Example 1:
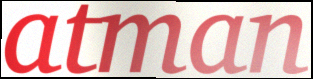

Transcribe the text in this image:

atman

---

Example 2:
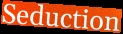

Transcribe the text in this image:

Seduction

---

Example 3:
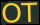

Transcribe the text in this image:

OT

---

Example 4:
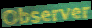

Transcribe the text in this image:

Observer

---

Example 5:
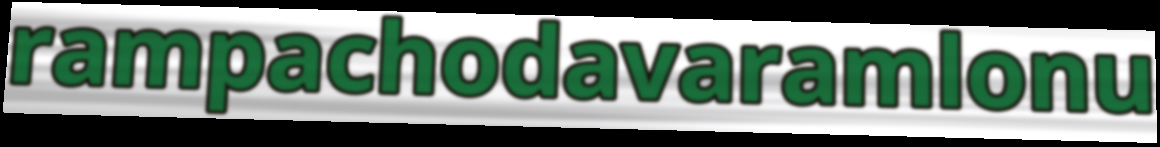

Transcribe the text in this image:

rampachodavaramlonu